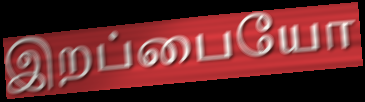
இறப்பையோ